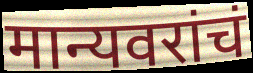
मान्यवरांचं